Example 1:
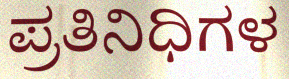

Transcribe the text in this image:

ಪ್ರತಿನಿಧಿಗಳ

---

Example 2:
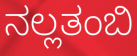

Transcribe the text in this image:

ನಲ್ಲತಂಬಿ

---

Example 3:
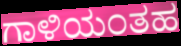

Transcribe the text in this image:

ಗಾಳಿಯಂತಹ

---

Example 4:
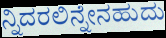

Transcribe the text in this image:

ನ್ನಿದರಲಿನ್ನೇನಹುದು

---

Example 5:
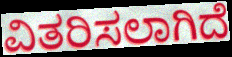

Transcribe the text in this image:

ವಿತರಿಸಲಾಗಿದೆ